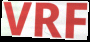
VRF